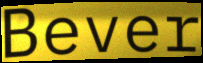
Bever